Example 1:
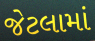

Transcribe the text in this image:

જેટલામાં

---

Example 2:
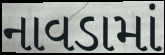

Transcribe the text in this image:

નાવડામાં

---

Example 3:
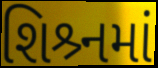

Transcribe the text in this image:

શિશ્ર્નમાં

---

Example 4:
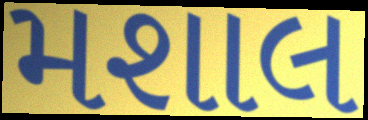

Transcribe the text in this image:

મશાલ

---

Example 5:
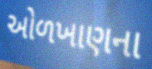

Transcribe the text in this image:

ઓળખાણના